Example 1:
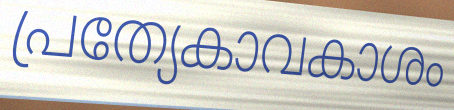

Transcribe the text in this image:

പ്രത്യേകാവകാശം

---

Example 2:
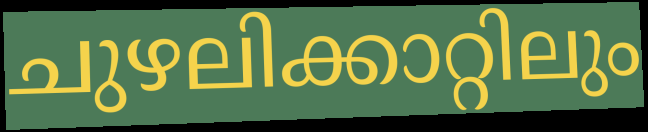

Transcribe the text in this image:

ചുഴലിക്കാറ്റിലും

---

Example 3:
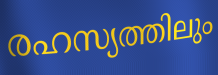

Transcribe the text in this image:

രഹസ്യത്തിലും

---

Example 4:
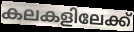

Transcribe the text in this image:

കലകളിലേക്ക്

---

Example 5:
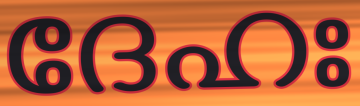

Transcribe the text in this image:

ദേഹഃ